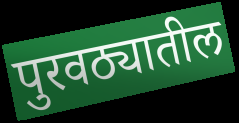
पुरवठ्यातील